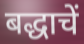
बद्धाचें